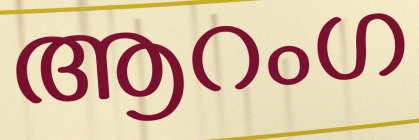
ആറംഗ